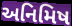
અનિમિષ